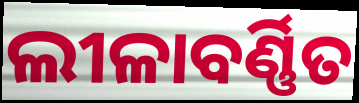
ଲୀଳାବର୍ଣ୍ଣିତ